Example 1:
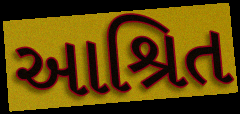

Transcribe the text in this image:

આશ્રિત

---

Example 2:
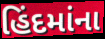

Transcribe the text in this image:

હિંદમાંના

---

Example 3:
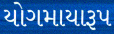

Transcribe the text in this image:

યોગમાયારૂપ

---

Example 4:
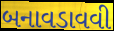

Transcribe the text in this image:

બનાવડાવવી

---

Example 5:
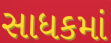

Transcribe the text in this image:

સાધકમાં